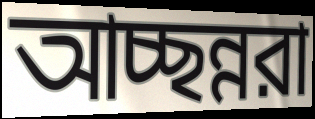
আচ্ছন্নরা